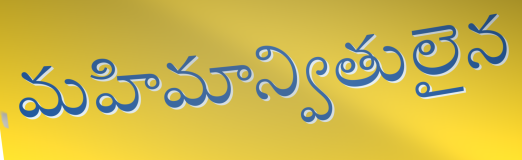
మహిమాన్వితులైన